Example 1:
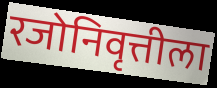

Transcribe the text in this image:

रजोनिवृत्तीला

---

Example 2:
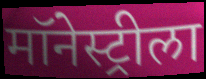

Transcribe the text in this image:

मॉनेस्ट्रीला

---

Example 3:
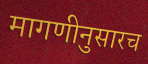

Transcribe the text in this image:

मागणीनुसारच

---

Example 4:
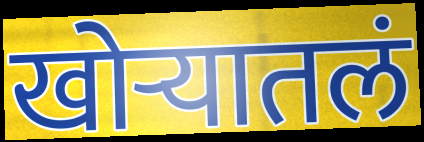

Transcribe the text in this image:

खोऱ्यातलं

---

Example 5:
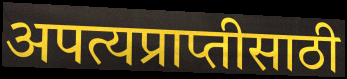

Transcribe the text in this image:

अपत्यप्राप्तीसाठी